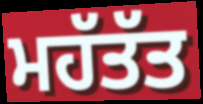
ਮਹੱਤੱਤ